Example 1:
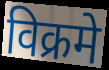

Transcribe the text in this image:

विक्रमे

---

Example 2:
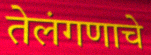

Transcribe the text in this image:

तेलंगणाचे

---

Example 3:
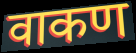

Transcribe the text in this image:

वाकण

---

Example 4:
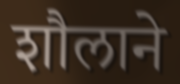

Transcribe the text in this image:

शौलाने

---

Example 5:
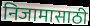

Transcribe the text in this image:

निजामासाठी